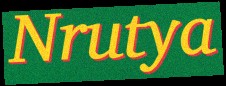
Nrutya